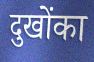
दुखोंका